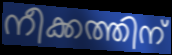
നീക്കത്തിന്